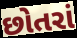
છોતરાં